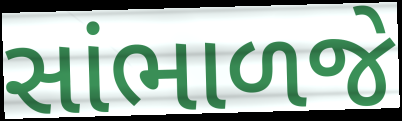
સાંભાળજે